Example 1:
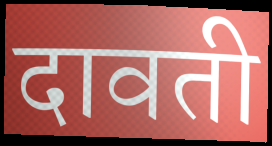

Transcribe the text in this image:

दावती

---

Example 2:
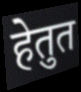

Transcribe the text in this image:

हेतुत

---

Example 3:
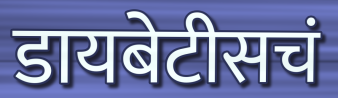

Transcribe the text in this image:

डायबेटीसचं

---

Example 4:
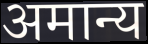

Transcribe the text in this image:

अमान्य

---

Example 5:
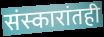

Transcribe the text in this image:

संस्कारांतही